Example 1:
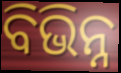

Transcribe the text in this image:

ବିଭିନ୍ନ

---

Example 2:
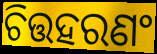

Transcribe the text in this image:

ଚିତ୍ତହରଣଂ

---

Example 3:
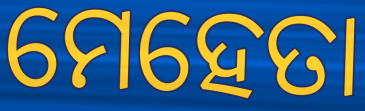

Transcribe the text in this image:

ମେହେତା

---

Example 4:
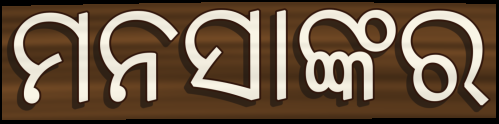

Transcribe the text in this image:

ମନସାଙ୍କର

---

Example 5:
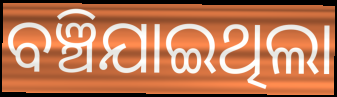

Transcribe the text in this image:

ବଞ୍ଚିଯାଇଥିଲା